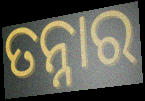
ତନ୍ନାର